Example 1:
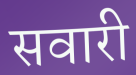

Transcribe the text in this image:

सवारी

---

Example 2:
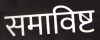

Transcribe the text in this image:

समाविष्ट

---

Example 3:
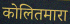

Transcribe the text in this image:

कोलितमारा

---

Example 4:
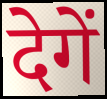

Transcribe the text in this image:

देगें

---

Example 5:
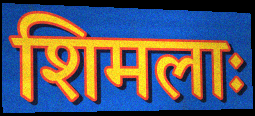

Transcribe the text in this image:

शिमलाः